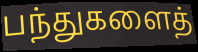
பந்துகளைத்